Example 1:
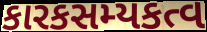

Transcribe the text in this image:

કારકસમ્યકત્વ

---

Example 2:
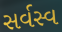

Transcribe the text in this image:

સર્વસ્વ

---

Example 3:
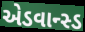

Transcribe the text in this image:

એડવાન્સ્ડ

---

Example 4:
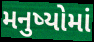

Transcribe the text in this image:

મનુષ્યોમાં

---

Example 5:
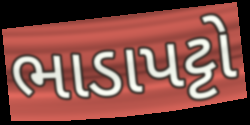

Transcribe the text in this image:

ભાડાપટ્ટો